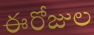
ఈరోజుల